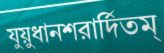
যুয়ুধানশরার্দিতম্